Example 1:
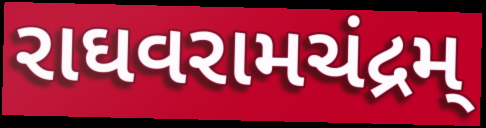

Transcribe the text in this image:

રાઘવરામચંદ્રમ્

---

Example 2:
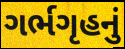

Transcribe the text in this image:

ગર્ભગૃહનું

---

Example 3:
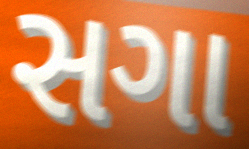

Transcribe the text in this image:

સગા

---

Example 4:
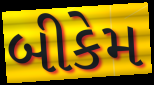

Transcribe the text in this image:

બીકેમ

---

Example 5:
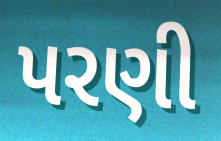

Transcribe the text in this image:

પરણી